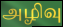
அழிவு